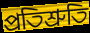
প্রতিশ্রুতি